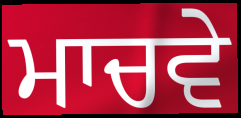
ਮਾਚਵੇ